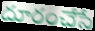
దూరంచేసే